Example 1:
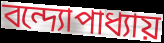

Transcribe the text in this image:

বন্দ্যোপাধ্যায়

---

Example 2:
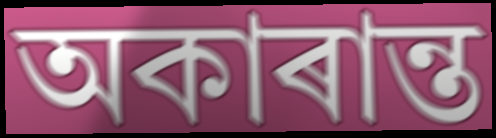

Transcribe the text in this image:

অকাৰান্ত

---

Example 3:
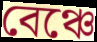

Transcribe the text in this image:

বেঞ্চে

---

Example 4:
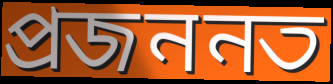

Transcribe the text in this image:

প্ৰজননত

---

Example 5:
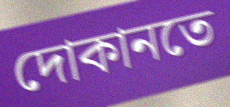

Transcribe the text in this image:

দোকানতে